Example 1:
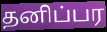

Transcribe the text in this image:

தனிப்பர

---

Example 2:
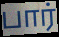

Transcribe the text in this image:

பார்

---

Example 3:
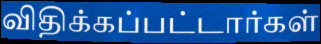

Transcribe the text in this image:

விதிக்கப்பட்டார்கள்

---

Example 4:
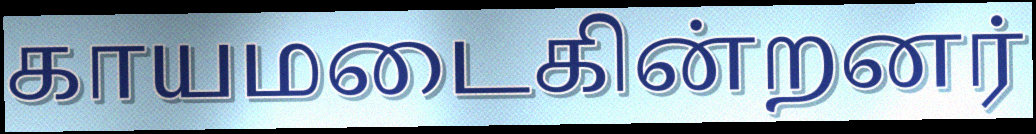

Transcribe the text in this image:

காயமடைகின்றனர்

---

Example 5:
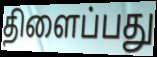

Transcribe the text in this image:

திளைப்பது